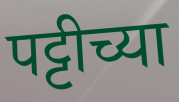
पट्टीच्या